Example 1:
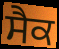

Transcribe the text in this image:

ਸੈਕ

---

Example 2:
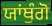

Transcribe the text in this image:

ਯਾਂਥੁੰਗੋ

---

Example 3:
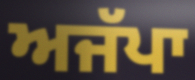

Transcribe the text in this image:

ਅਜੱਪਾ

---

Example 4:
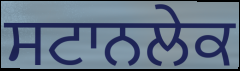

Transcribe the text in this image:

ਸਟਾਨਲੇਕ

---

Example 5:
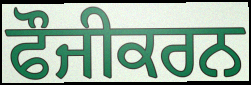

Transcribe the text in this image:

ਫੌਜੀਕਰਨ